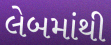
લેબમાંથી